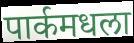
पार्कमधला